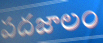
పదజాలం